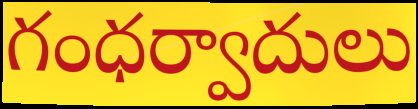
గంధర్వాదులు